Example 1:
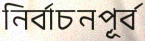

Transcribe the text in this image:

নির্বাচনপূর্ব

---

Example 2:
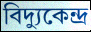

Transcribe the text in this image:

বিদ্যুকেন্দ্র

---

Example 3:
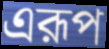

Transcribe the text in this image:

এরূপ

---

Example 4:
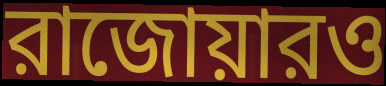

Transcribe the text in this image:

রাজোয়ারও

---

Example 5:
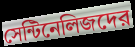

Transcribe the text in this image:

সেন্টিনেলিজদের